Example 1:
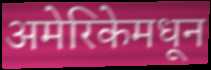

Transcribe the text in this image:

अमेरिकेमधून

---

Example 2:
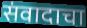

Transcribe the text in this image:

संवादाचा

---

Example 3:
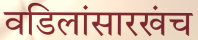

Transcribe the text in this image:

वडिलांसारखंच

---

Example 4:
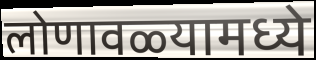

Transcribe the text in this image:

लोणावळ्यामध्ये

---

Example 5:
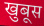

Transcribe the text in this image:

खुबूस